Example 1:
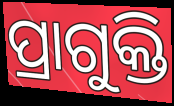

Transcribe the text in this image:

ପ୍ରାଗୁକ୍ତି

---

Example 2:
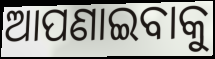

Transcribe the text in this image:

ଆପଣାଇବାକୁ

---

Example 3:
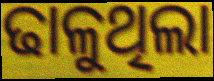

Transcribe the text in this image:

ଢାଳୁଥିଲା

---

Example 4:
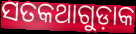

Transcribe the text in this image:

ସତକଥାଗୁଡ଼ାକ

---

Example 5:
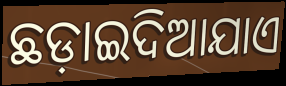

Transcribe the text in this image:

ଛଡ଼ାଇଦିଆଯାଏ